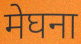
मेघना